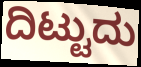
ದಿಟ್ಟುದು